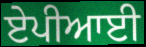
ਏਪੀਆਈ